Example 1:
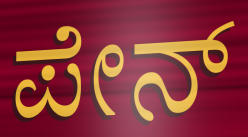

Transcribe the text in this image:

ಪೇನ್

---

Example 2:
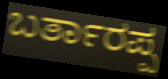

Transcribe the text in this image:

ಬರ್ತಾರಪ್ಪ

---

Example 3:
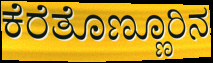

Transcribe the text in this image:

ಕೆರೆತೊಣ್ಣೂರಿನ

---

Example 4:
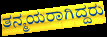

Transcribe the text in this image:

ತನ್ಮಯರಾಗಿದ್ದರು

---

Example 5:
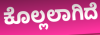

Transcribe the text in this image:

ಕೊಲ್ಲಲಾಗಿದೆ